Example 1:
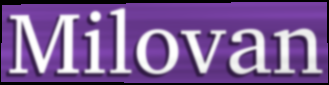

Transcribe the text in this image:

Milovan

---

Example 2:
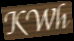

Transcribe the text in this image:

KWh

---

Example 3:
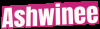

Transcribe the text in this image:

Ashwinee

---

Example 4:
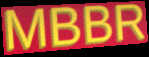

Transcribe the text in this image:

MBBR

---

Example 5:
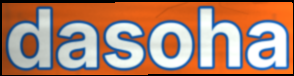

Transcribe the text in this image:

dasoha